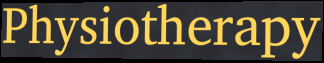
Physiotherapy